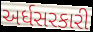
અર્ધસરકારી